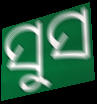
ସୁସ